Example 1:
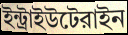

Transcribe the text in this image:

ইন্ট্রাইউটেরাইন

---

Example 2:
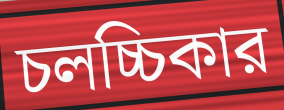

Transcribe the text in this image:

চলচ্চিকার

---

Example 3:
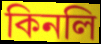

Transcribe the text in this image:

কিনলি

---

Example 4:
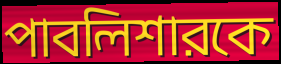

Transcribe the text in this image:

পাবলিশারকে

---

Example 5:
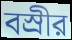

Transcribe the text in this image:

বস্রীর